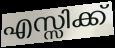
എസ്സിക്ക്